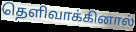
தெளிவாக்கினால்